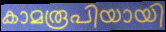
കാമരൂപിയായി